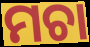
ମଚା